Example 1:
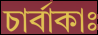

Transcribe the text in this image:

চার্বাকাঃ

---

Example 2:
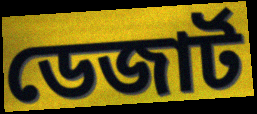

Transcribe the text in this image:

ডেজার্ট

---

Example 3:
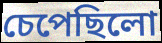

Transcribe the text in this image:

চেপেছিলো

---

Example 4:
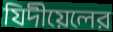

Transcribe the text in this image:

যিদীয়েলের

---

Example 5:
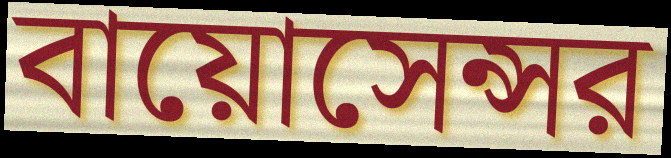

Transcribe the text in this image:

বায়োসেন্সর